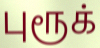
புரூக்